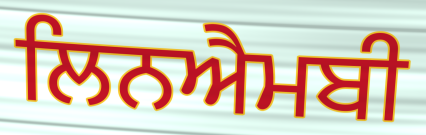
ਲਿਨਐਮਬੀ